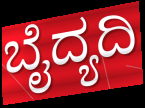
ಬೈದ್ಯದಿ